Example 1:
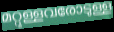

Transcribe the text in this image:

മറ്റുള്ളവരോടുള്ള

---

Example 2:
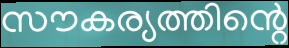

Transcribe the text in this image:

സൗകര്യത്തിന്റെ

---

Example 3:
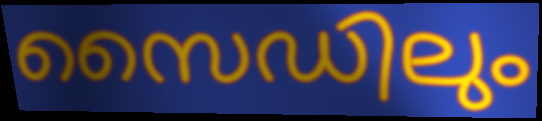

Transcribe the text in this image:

സൈഡിലും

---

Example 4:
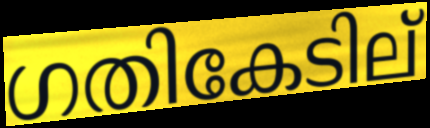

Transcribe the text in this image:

ഗതികേടില്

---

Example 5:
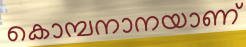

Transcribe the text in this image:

കൊമ്പനാനയാണ്